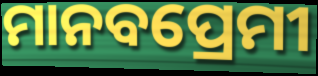
ମାନବପ୍ରେମୀ